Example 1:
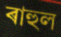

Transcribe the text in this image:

ৰাহুল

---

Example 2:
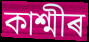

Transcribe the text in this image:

কাশ্মীৰ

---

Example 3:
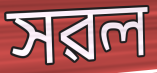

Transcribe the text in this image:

সৱল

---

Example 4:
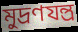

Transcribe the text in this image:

মুদ্ৰণযন্ত্ৰ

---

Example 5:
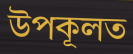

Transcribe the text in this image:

উপকূলত